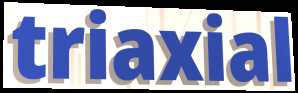
triaxial